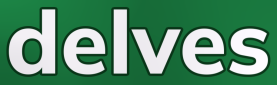
delves